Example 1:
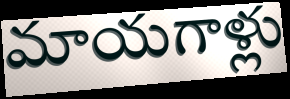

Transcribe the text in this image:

మాయగాళ్లు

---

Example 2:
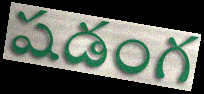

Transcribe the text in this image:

షడంగ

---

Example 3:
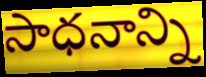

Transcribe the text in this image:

సాధనాన్ని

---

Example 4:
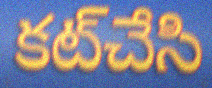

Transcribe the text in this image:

కట్‌చేసి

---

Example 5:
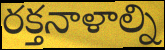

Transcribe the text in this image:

రక్తనాళాల్ని